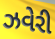
ઝવેરી